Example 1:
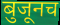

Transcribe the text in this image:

बुजूनच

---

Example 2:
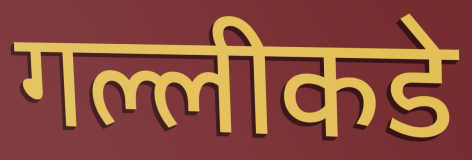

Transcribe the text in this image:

गल्लीकडे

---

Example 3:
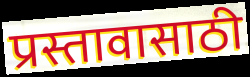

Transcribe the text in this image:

प्रस्तावासाठी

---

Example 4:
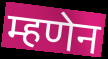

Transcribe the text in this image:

म्हणेन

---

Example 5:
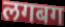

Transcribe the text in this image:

लगबग